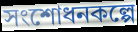
সংশোধনকল্পে